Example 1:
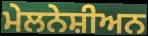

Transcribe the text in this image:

ਮੇਲਨੇਸ਼ੀਅਨ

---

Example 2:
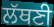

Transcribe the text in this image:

ਲੱਥਣੀ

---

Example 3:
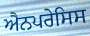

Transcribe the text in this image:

ਐਨਪਰੇਸਿਸ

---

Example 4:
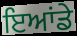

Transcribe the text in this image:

ਇਆਂਡੇ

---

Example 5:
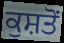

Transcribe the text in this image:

ਕੁਸ਼ਤੋਂ